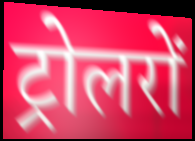
ट्रोलरों